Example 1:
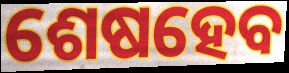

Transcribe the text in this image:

ଶେଷହେବ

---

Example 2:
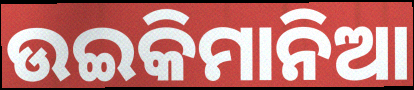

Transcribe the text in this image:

ଉଇକିମାନିଆ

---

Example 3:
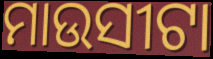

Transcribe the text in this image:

ମାଉସୀଟା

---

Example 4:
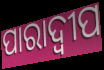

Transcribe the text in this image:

ପାରାଦ୍ୱୀପ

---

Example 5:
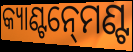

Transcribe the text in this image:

କ୍ୟାଣ୍ଟନ୍‍ମେଣ୍ଟ